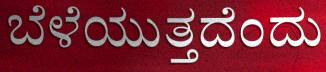
ಬೆಳೆಯುತ್ತದೆಂದು